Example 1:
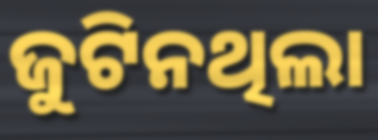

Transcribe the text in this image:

ଜୁଟିନଥିଲା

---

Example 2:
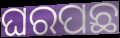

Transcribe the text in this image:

ଘରପଛ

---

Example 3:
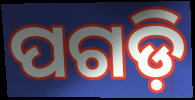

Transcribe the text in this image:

ପଗଡ଼ି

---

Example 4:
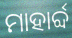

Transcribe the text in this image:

ମାହାର୍ବ୍ଦ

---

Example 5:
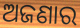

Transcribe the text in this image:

ଅଜଣାର